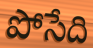
పోసేది